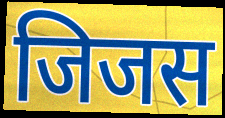
जिजस